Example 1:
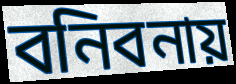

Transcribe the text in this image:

বনিবনায়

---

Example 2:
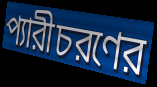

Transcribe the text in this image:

প্যারীচরণের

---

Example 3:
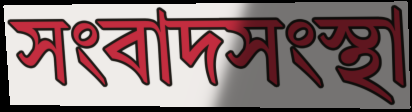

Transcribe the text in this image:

সংবাদসংস্থা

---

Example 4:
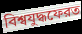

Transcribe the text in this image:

বিশ্বযুদ্ধফেরত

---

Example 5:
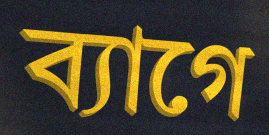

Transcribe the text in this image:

ব্যাগে